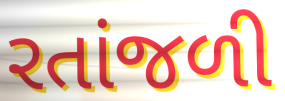
રતાંજળી